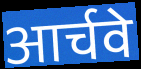
आर्चवे